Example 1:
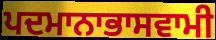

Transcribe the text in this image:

ਪਦਮਾਨਾਭਾਸਵਾਮੀ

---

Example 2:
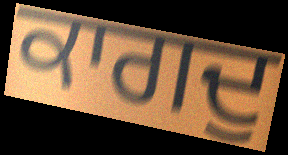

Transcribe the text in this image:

ਕਾਗਦੁ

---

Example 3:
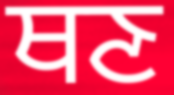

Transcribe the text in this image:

ਥਣ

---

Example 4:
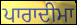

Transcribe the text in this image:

ਪਾਰਾਦੀਮਾ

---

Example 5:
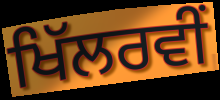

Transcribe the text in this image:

ਖਿੱਲਰਵੀਂ